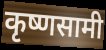
कृष्णसामी